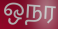
ஒநர